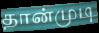
தான்முடி